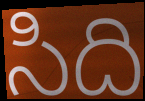
సిది